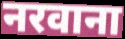
नरवाना